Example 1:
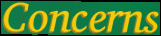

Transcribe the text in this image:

Concerns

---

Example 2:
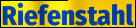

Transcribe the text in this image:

Riefenstahl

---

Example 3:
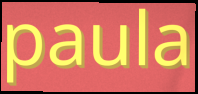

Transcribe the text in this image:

paula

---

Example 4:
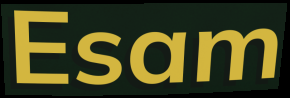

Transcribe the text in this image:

Esam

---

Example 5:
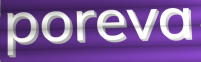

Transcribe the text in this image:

poreva